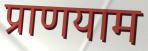
प्राणयाम